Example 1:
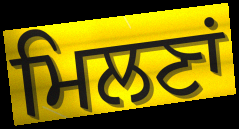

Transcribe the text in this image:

ਮਿਲਣਾਂ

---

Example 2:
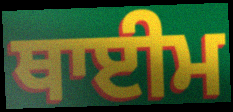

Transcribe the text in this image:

ਥਾਈਮ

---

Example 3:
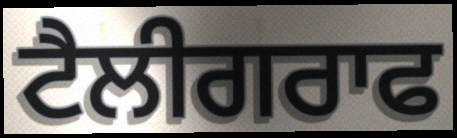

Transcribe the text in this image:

ਟੈਲੀਗਰਾਫ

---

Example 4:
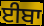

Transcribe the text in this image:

ਈਬਾ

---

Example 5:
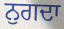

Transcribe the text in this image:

ਨੁਗਦਾ